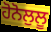
ਹੋਨੋਲੁਲੂ